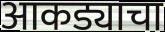
आकड्याचा